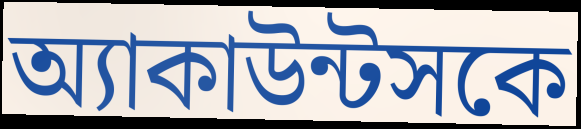
অ্যাকাউন্টসকে